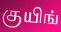
குயிங்